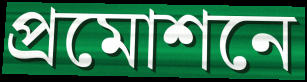
প্রমোশনে